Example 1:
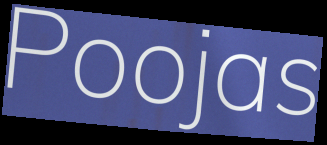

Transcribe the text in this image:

Poojas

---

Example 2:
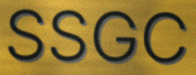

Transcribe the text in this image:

SSGC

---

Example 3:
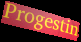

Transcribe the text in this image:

Progestin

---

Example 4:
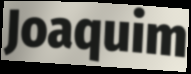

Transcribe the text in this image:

Joaquim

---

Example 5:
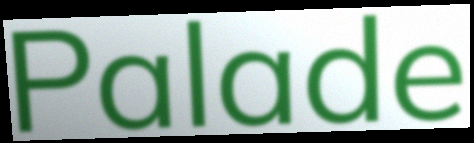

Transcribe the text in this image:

Palade